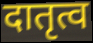
दातृत्व